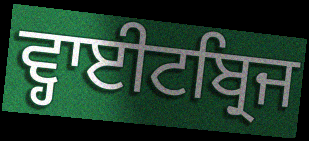
ਵ੍ਹਾਈਟਬ੍ਰਿਜ